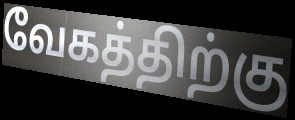
வேகத்திற்கு